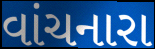
વાંચનારા